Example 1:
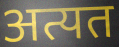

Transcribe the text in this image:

अत्यत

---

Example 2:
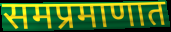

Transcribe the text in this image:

समप्रमाणात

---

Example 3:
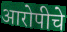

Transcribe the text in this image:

आरोपीचे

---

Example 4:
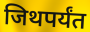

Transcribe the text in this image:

जिथपर्यंत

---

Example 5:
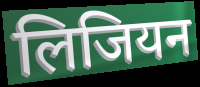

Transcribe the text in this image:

लिजियन